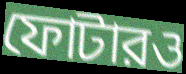
ফোটারও